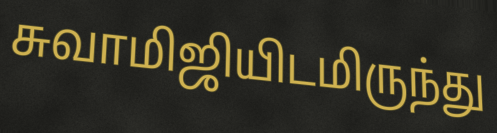
சுவாமிஜியிடமிருந்து